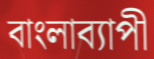
বাংলাব্যাপী